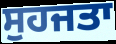
ਸੁਹਜਤਾ